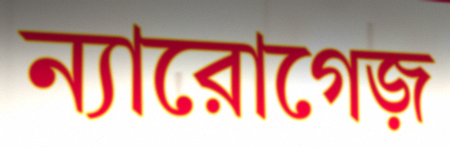
ন্যারোগেজ়